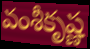
వంశీకృష్ణ